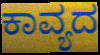
ಕಾವ್ಯದ